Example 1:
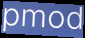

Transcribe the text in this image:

pmod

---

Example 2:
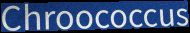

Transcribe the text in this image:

Chroococcus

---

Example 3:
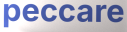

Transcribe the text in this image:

peccare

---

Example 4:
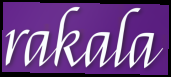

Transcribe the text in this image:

rakala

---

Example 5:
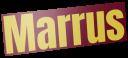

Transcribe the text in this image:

Marrus